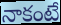
నాకంటే